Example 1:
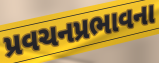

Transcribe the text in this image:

પ્રવચનપ્રભાવના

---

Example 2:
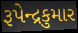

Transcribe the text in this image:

રૂપેન્દ્રકુમાર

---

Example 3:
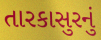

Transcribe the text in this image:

તારકાસુરનું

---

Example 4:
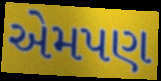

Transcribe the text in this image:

એમપણ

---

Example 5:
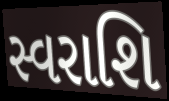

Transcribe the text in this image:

સ્વરાશિ